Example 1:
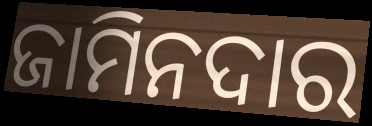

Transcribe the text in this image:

ଜାମିନଦାର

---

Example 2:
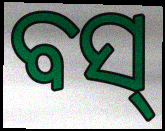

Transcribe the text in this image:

ବସ୍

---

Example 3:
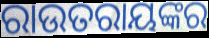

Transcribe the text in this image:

ରାଉତରାୟଙ୍କର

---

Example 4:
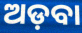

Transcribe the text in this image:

ଅଡ଼ବା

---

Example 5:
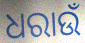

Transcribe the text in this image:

ଧରାଉଁ